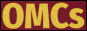
OMCs